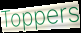
Toppers